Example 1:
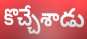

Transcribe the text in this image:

కొచ్చేశాడు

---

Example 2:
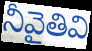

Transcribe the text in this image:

నీవైతివి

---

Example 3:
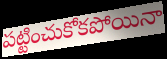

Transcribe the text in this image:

పట్టించుకోకపోయినా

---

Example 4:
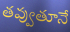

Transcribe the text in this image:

తవ్వుతూనే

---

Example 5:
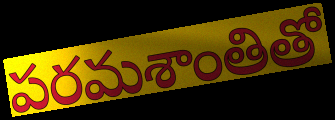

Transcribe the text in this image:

పరమశాంతితో